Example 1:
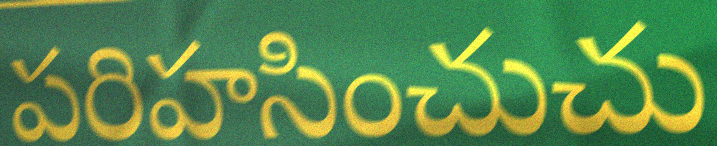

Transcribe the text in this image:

పరిహసించుచు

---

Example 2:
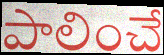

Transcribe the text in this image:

పాలించే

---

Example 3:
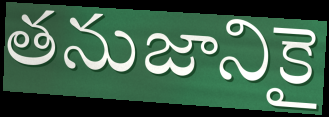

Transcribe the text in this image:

తనుజానికై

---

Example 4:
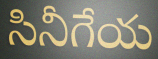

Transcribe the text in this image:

సినీగేయ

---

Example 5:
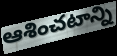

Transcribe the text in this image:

ఆశించటాన్ని